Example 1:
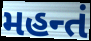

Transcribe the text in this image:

મહન્તં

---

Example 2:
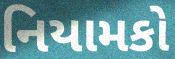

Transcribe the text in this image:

નિયામકો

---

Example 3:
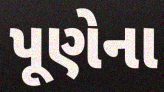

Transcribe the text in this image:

પૂણેના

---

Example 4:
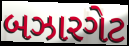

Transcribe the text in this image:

બઝારગેટ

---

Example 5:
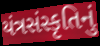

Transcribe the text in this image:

યંત્રસંસ્કૃતિનું